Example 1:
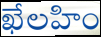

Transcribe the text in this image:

ఖేలహిం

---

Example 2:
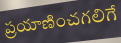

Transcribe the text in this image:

ప్రయాణించగలిగే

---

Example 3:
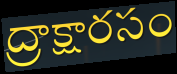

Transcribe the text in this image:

ద్రాక్షారసం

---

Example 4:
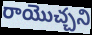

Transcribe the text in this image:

రాయొచ్చని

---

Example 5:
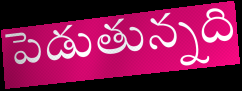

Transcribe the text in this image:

పెడుతున్నది